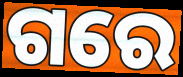
ଗରେ